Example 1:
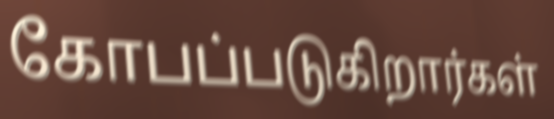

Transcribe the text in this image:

கோபப்படுகிறார்கள்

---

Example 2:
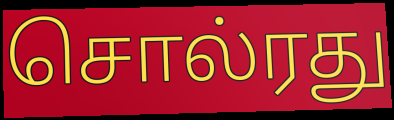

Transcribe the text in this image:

சொல்ரது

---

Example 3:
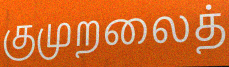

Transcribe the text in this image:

குமுறலைத்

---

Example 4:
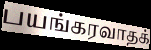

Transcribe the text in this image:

பயங்கரவாதக்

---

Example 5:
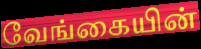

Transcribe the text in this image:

வேங்கையின்